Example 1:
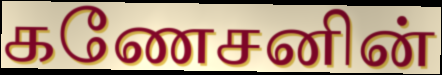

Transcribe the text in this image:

கணேசனின்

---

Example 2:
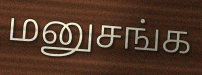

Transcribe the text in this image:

மனுசங்க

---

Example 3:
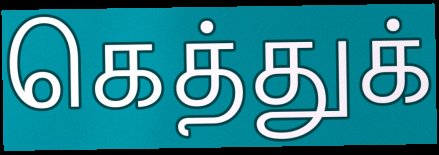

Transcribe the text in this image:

கெத்துக்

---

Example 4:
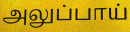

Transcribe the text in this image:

அலுப்பாய்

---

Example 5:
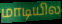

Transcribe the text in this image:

மாடியில